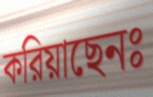
করিয়াছেনঃ